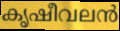
കൃഷീവലൻ